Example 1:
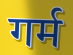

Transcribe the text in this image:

गर्म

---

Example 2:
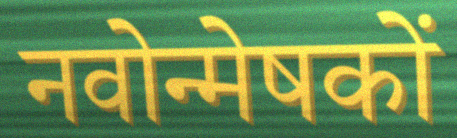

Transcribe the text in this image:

नवोन्मेषकों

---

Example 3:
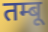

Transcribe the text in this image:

तम्बू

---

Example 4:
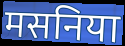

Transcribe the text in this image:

मसनिया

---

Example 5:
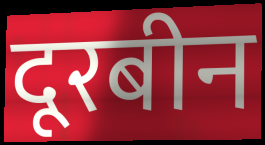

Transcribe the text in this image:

दूरबीन